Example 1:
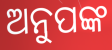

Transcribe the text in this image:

ଅନୁପଙ୍କ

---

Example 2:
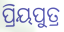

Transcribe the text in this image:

ପ୍ରିୟପୁତ୍ର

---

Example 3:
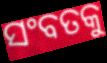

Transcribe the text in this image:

ସଂବତକୁ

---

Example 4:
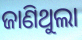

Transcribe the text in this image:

ଜାଣିଥୁଲା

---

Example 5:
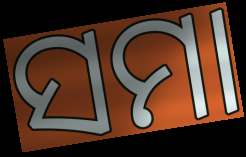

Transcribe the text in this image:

ସମା